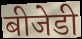
बीजेडी